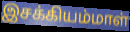
இசக்கியம்மாள்